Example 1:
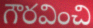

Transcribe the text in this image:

గౌరవించి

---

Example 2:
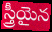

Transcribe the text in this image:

స్త్రీయైన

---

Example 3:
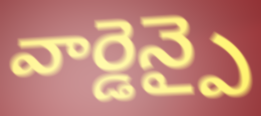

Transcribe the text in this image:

వార్డెన్పై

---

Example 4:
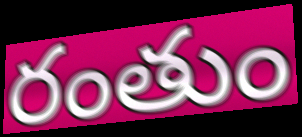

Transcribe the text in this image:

రంతుం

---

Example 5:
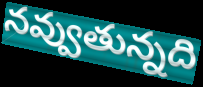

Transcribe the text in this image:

నవ్వుతున్నది